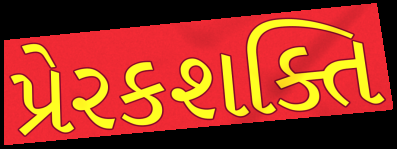
પ્રેરકશક્તિ